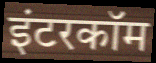
इंटरकॉम